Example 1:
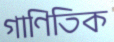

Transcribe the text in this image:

গাণিতিক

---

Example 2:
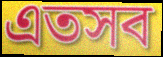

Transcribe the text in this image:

এতসব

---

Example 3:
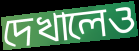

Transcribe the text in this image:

দেখালেও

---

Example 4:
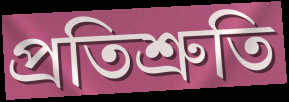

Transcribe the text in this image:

প্রতিশ্রুতি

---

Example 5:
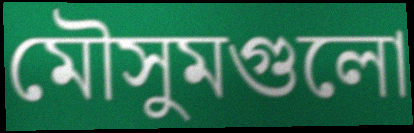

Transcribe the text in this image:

মৌসুমগুলো